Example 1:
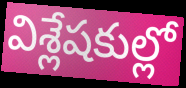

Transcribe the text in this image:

విశ్లేషకుల్లో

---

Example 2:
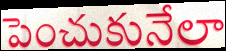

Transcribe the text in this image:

పెంచుకునేలా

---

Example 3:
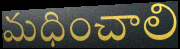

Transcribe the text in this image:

మధించాలి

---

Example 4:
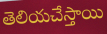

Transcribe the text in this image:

తెలియచేస్తాయి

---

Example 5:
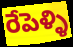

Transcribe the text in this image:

రేపెళ్ళి